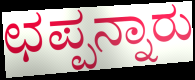
ಛಪ್ಪನ್ನಾರು